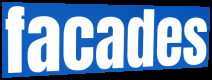
facades